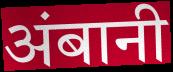
अंबानी